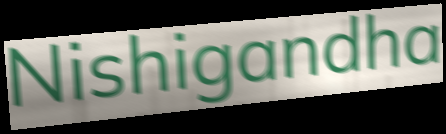
Nishigandha